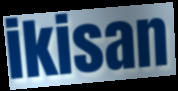
ikisan